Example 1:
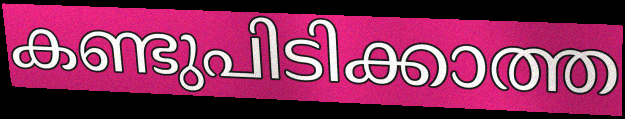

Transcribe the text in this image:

കണ്ടുപിടിക്കാത്ത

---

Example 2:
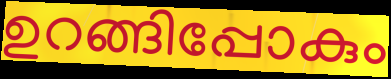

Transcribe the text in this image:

ഉറങ്ങിപ്പോകും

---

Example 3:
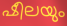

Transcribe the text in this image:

ഷീലയും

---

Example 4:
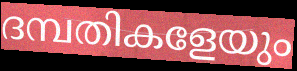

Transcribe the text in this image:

ദമ്പതികളേയും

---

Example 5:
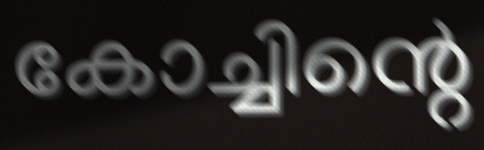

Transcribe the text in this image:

കോച്ചിന്റെ